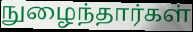
நுழைந்தார்கள்